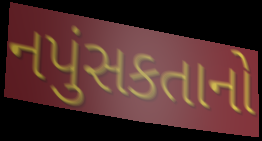
નપુંસકતાનો